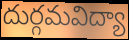
దుర్గమవిద్యా